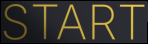
START